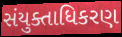
સંયુક્તાધિકરણ